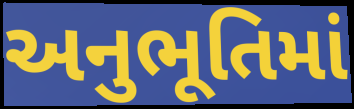
અનુભૂતિમાં